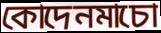
কোদেনমাচো